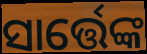
ସାର୍ତ୍ତେଙ୍କ